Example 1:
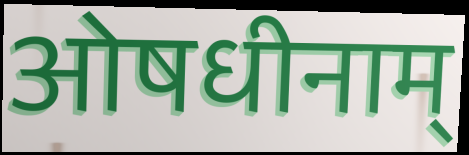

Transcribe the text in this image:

ओषधीनाम्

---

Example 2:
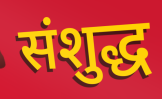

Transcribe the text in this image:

संशुद्ध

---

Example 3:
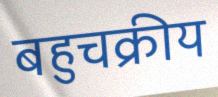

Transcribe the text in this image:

बहुचक्रीय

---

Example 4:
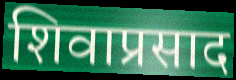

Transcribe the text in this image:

शिवाप्रसाद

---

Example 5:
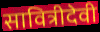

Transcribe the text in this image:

सावित्रीदेवी